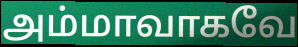
அம்மாவாகவே